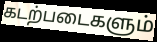
கடற்படைகளும்